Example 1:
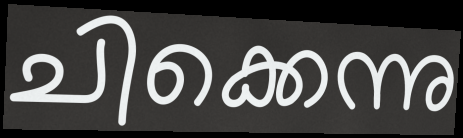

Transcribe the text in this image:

ചിക്കെന്നു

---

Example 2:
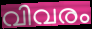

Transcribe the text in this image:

വിവരം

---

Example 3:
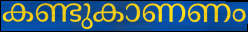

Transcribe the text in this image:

കണ്ടുകാണണം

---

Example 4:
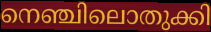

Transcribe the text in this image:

നെഞ്ചിലൊതുക്കി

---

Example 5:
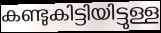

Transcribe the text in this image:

കണ്ടുകിട്ടിയിട്ടുള്ള